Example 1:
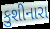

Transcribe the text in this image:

કુશીનારા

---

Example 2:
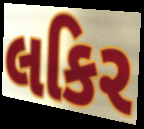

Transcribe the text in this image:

લકિર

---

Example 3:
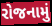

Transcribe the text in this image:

રોજનામું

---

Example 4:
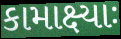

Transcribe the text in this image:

કામાક્ષ્યાઃ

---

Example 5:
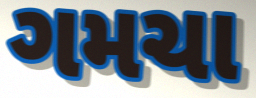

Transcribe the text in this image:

ગમચા